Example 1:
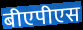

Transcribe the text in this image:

बीएपीएस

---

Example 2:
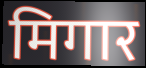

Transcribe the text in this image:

मिगार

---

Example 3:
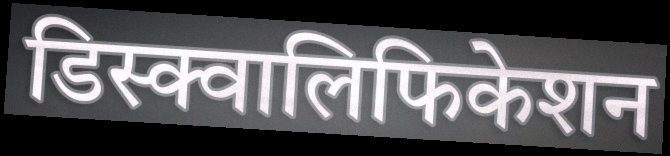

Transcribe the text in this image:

डिस्क्वालिफिकेशन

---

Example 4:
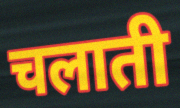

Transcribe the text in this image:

चलाती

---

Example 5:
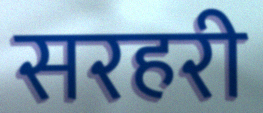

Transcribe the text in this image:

सरहरी